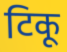
टिकू